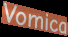
Vomica